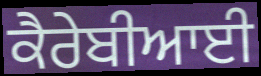
ਕੈਰੇਬੀਆਈ